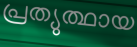
പ്രത്യുത്ഥായ